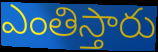
ఎంతిస్తారు